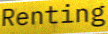
Renting